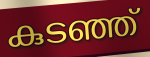
കുടഞ്ഞ്